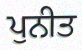
ਪੁਨੀਤ